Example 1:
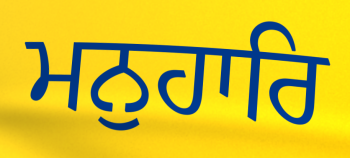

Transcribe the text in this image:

ਮਨੁਹਾਰਿ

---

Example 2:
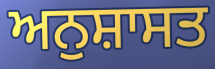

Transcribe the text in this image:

ਅਨੁਸ਼ਾਸਤ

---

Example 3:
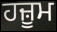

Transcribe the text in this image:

ਹਜ਼ੂਮ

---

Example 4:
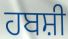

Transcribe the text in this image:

ਹਬਸ਼ੀ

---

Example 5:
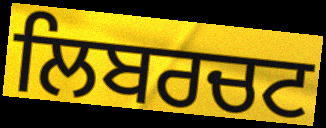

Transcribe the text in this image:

ਲਿਬਰਚਟ